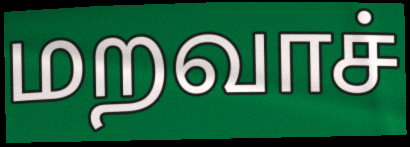
மறவாச்